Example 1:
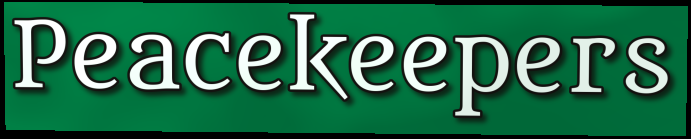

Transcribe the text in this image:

Peacekeepers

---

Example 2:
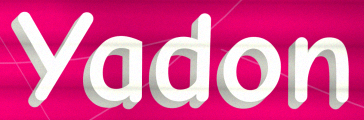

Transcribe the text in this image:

Yadon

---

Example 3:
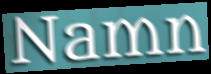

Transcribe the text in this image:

Namn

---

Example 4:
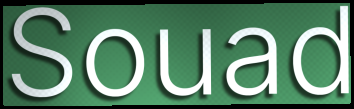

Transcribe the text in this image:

Souad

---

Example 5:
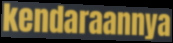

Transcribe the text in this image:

kendaraannya